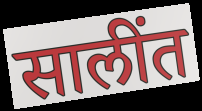
सालींत